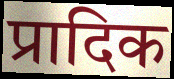
प्रादिक